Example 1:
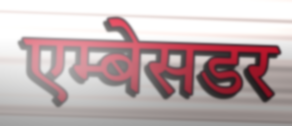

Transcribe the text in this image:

एम्‍बेसडर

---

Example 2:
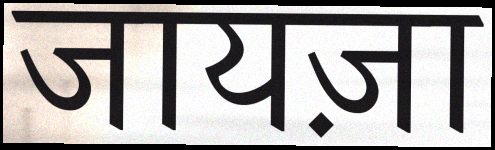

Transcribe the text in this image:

जायज़ा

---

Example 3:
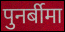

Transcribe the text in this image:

पुनर्बीमा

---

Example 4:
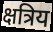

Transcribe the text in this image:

क्षत्रिय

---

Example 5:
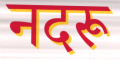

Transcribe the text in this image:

नदरू